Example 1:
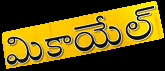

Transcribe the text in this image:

మికాయేల్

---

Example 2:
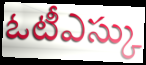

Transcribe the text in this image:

ఓటీఎస్కు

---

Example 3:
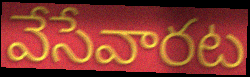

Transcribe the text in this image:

వేసేవారట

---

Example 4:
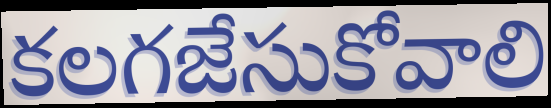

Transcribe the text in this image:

కలగజేసుకోవాలి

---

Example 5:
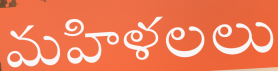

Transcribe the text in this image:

మహిళలలు